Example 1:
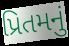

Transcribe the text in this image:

પ્રિતમનું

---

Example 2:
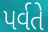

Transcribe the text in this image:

પર્વતે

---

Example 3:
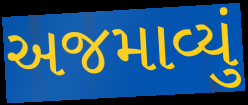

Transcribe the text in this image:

અજમાવ્યું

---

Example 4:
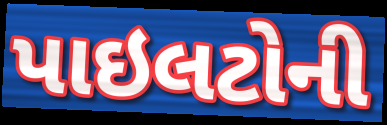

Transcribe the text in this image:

પાઇલટોની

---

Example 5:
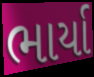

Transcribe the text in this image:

ભાર્યા